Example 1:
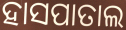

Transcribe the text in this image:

ହାସପାତାଲ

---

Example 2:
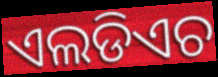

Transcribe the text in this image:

ଏଲଡିଏଚ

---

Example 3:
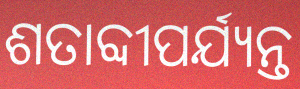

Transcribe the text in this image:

ଶତାବ୍ଦୀପର୍ଯ୍ୟନ୍ତ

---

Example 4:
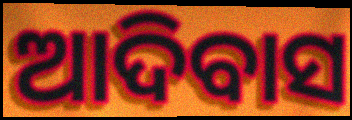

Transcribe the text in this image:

ଆଦିବାସ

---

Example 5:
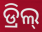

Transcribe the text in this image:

ଡ୍ରିଲ୍